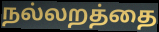
நல்லறத்தை